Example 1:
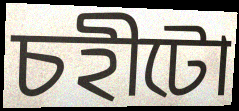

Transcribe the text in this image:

চহীটো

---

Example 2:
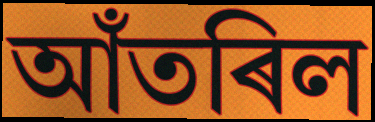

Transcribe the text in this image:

আঁতৰিল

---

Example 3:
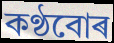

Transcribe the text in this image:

কণ্ঠবোৰ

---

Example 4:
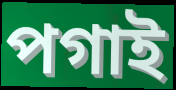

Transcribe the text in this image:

পগাই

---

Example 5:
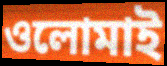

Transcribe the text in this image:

ওলোমাই